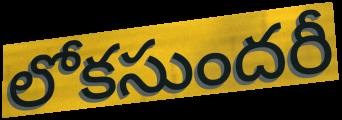
లోకసుందరీ